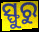
ସ୍ଫୁରୁ